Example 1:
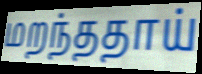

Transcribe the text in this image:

மறந்ததாய்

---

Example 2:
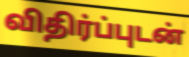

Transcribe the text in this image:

விதிர்ப்புடன்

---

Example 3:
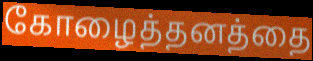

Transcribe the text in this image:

கோழைத்தனத்தை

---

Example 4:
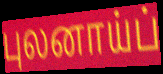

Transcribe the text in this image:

புலனாய்ப்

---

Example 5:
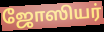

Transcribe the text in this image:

ஜோஸியர்